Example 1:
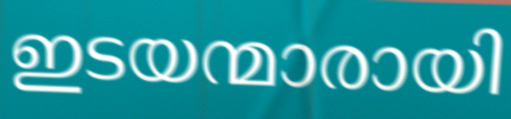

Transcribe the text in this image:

ഇടയന്മാരായി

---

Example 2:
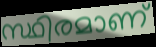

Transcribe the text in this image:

സ്ഥിരമാണ്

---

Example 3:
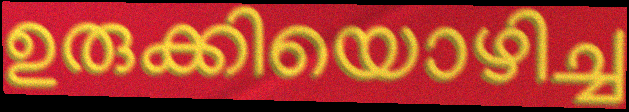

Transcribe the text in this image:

ഉരുക്കിയൊഴിച്ച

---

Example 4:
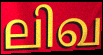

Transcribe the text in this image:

ലിഖ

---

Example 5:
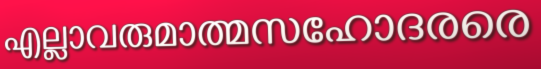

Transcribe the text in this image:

എല്ലാവരുമാത്മസഹോദരരെ